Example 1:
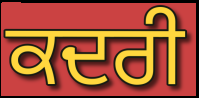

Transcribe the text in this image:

ਕਦਰੀ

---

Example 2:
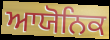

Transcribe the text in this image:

ਆਯੋਨਿਕ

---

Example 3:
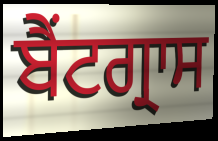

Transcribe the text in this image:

ਬੈਂਟਗ੍ਰਾਸ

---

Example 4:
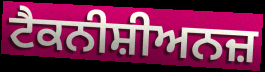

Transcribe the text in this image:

ਟੈਕਨੀਸ਼ੀਅਨਜ਼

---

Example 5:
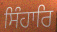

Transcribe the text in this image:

ਸਿੰਹਾਰਿ